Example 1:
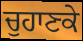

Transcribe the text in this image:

ਚੁਹਾਣਕੇ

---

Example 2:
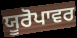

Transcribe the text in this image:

ਯੂਰੋਪਾਵਰ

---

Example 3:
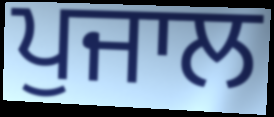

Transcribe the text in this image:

ਪੁਜਾਲ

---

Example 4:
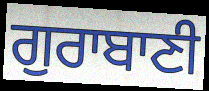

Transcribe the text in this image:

ਗੁਰਾਬਾਣੀ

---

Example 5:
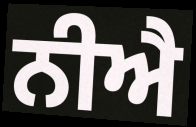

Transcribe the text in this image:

ਨੀਐ